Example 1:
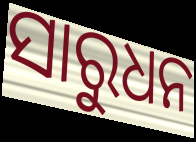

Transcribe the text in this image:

ସାରୁଧନ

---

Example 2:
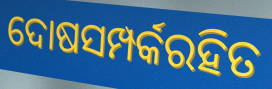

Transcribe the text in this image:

ଦୋଷସମ୍ପର୍କରହିତ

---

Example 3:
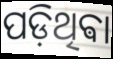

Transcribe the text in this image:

ପଡ଼ିଥିଵା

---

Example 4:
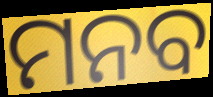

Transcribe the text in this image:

ମନବ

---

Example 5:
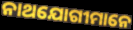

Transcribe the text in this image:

ନାଥଯୋଗୀମାନେ